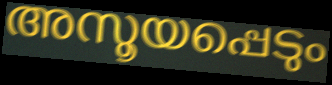
അസൂയപ്പെടും